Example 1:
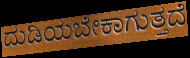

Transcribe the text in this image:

ದುಡಿಯಬೇಕಾಗುತ್ತದೆ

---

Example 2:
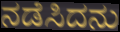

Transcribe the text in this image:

ನಡೆಸಿದನು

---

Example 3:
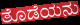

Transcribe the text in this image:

ತೊಡೆಯನು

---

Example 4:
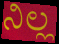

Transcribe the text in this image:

ನಿಲ್ಲ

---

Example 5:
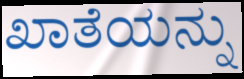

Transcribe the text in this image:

ಖಾತೆಯನ್ನು